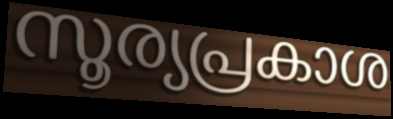
സൂര്യപ്രകാശ